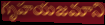
గృహయజమాని